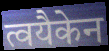
त्वयैकेन